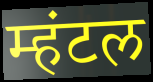
म्हंटल